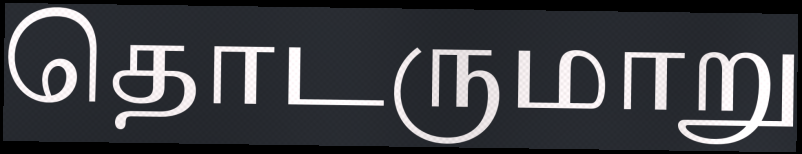
தொடருமாறு